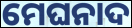
ମେଘନାଦ